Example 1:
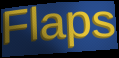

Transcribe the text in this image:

Flaps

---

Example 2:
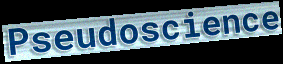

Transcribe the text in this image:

Pseudoscience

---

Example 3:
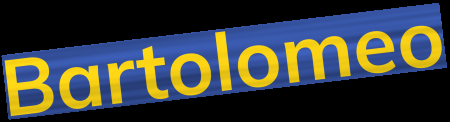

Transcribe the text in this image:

Bartolomeo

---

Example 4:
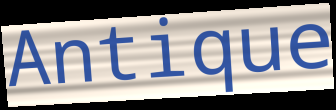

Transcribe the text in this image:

Antique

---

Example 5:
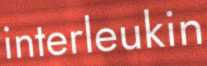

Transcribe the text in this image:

interleukin